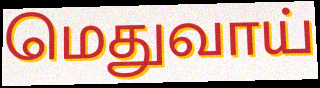
மெதுவாய்